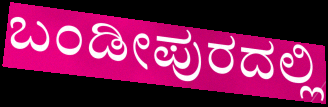
ಬಂಡೀಪುರದಲ್ಲಿ